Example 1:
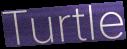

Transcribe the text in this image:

Turtle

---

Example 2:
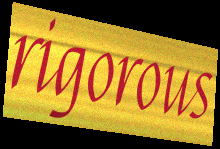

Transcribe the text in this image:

rigorous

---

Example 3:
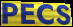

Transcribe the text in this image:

PECS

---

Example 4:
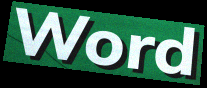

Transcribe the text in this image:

Word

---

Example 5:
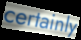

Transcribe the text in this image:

certainly